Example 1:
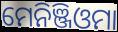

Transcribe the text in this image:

ମେନିଞ୍ଜିଓମା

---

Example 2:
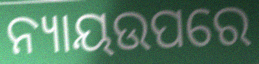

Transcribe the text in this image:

ନ୍ୟାୟଉପରେ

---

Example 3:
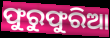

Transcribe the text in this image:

ଫୁରୁଫୁରିଆ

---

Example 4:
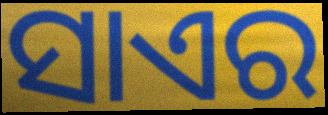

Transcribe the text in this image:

ସାଏର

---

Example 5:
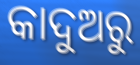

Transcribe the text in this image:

କାଦୁଅରୁ